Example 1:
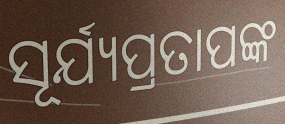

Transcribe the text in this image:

ସୂର୍ଯ୍ୟପ୍ରତାପଙ୍କ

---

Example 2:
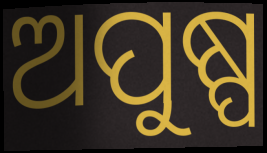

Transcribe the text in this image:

ଅପୁଷ୍ପ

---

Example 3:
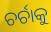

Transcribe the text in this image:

ଚର୍ଚାକୁ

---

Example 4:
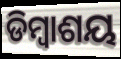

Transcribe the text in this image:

ଡିମ୍ବାଶୟ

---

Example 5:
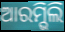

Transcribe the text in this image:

ଆରମ୍ଭିଲି